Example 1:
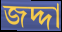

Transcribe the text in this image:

জদ্দা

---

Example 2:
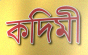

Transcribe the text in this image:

কদিমী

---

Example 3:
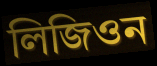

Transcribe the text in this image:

লিজিওন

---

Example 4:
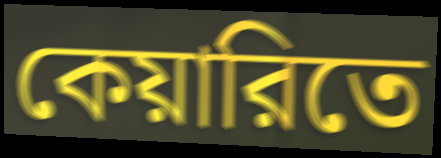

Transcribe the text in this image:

কেয়ারিতে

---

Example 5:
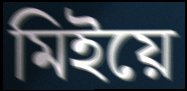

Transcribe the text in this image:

মিইয়ে